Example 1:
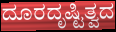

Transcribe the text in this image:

ದೂರದೃಷ್ಟಿತ್ವದ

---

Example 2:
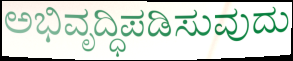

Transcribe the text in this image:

ಅಭಿವೃದ್ಧಿಪಡಿಸುವುದು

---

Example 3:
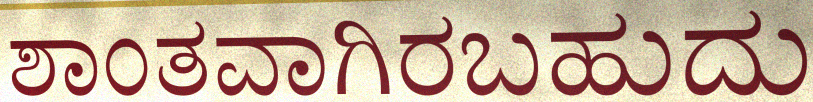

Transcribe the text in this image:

ಶಾಂತವಾಗಿರಬಹುದು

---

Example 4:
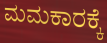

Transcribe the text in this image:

ಮಮಕಾರಕ್ಕೆ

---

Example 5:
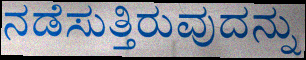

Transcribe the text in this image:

ನಡೆಸುತ್ತಿರುವುದನ್ನು